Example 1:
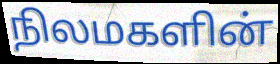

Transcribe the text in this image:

நிலமகளின்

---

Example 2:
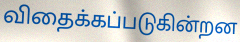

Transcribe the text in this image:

விதைக்கப்படுகின்றன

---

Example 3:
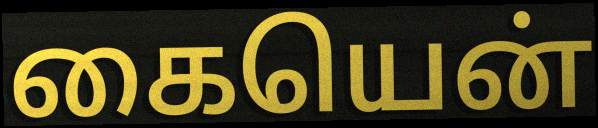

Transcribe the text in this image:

கையென்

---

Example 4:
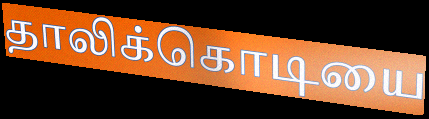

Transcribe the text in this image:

தாலிக்கொடியை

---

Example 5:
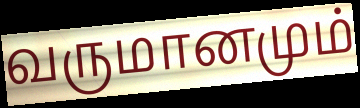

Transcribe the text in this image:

வருமானமும்